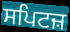
ਸਪਿਟਜ਼